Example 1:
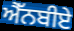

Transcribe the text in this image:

ਐੱਨਬੀਏ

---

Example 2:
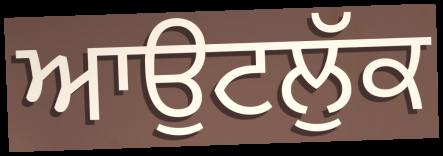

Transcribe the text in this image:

ਆਉਟਲੁੱਕ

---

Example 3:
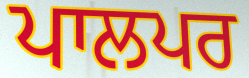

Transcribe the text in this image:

ਪਾਲਪਰ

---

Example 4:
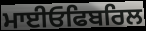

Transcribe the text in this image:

ਮਾਈਓਫਿਬਰਿਲ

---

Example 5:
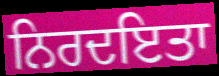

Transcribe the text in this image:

ਨਿਰਦਇਤਾ